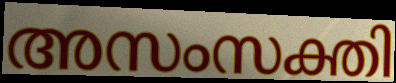
അസംസക്തി